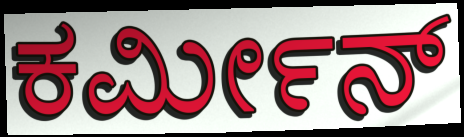
ಕರ್ಮೀನ್